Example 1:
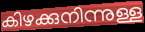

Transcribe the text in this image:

കിഴക്കുനിന്നുള്ള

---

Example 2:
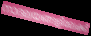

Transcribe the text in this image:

നാദലയങ്ങളിലേക്ക്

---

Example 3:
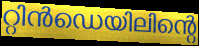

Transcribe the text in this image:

റ്റിൻഡെയിലിന്റെ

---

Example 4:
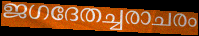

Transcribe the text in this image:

ജഗദേതച്ചരാചരം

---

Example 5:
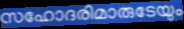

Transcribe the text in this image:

സഹോദരിമാരുടേയും